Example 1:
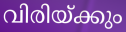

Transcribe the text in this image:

വിരിയ്ക്കും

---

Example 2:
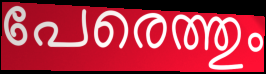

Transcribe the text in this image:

പേരെത്തും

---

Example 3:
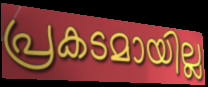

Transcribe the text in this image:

പ്രകടമായില്ല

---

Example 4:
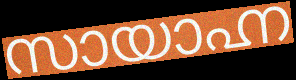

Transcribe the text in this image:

സായാഹ്ന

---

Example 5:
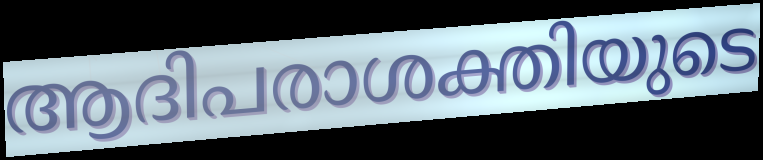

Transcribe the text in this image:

ആദിപരാശക്തിയുടെ